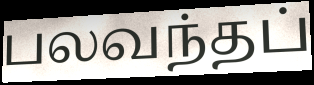
பலவந்தப்